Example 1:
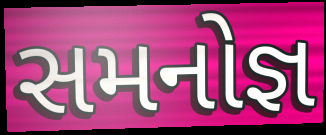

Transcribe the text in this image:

સમનોજ્ઞ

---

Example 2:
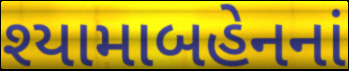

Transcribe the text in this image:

શ્યામાબહેનનાં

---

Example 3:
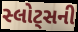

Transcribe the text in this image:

સ્લોટ્સની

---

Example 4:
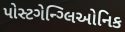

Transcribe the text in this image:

પોસ્ટગેન્ગ્લિઓનિક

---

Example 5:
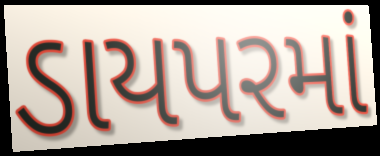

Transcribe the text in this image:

ડાયપરમાં